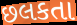
છલકતા